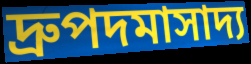
দ্রুপদমাসাদ্য